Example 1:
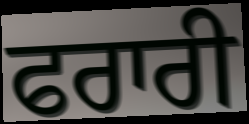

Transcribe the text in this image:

ਫਰਾਰੀ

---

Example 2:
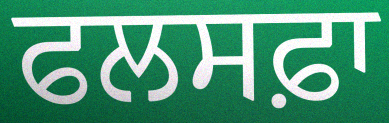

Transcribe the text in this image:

ਫਲਸਫ਼ਾ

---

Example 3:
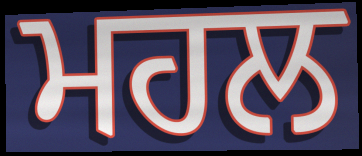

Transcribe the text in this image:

ਮਹਲ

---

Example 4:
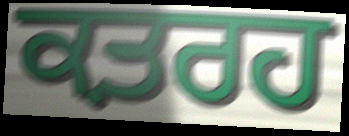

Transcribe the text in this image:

ਕ਼ਤਰਹ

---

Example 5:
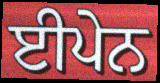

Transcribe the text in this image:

ਈਪੇਨ